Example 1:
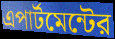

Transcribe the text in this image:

এপার্টমেন্টের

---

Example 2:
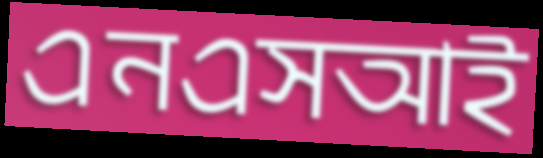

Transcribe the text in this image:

এনএসআই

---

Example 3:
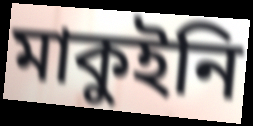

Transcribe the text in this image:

মাকুইনি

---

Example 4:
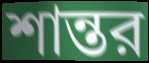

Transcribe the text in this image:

শান্তর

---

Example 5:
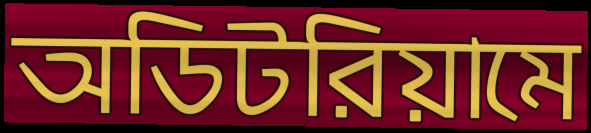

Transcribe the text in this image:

অডিটরিয়ামে